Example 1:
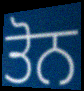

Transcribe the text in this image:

ਤੋਨ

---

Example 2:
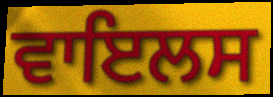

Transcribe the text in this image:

ਵਾਇਲਸ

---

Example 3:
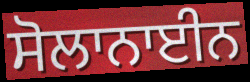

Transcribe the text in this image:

ਸੋਲਾਨਾਈਨ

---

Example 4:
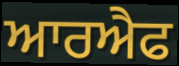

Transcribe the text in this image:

ਆਰਐਫ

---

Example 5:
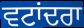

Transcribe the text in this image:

ਵਟਾਂਦਰਾ